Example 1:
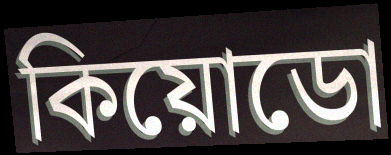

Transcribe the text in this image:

কিয়োডো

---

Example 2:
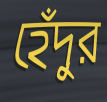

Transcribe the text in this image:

হেঁদুর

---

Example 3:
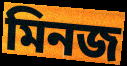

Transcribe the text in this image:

মিনজ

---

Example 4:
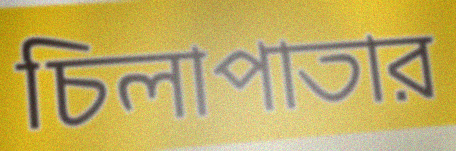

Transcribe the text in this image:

চিলাপাতার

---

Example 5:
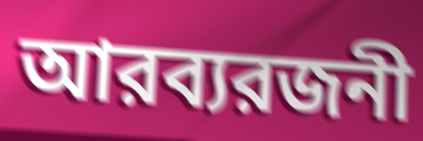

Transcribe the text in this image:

আরব্যরজনী